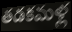
తడకమళ్ల